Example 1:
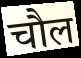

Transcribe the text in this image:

चौल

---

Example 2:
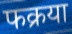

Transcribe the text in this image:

फक्रया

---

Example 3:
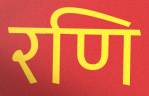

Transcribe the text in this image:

रणि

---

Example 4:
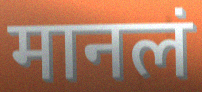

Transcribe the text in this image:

मानलं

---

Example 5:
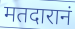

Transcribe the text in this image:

मतदारानं